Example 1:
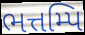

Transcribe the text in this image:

ભત્તમ્પિ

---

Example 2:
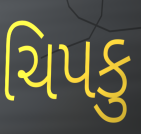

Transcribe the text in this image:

ચિપકુ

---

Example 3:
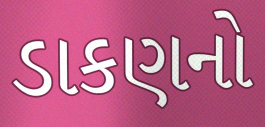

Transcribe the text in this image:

ડાકણનો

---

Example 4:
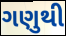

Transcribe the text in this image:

ગણુથી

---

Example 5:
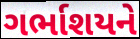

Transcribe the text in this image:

ગર્ભાશયને